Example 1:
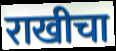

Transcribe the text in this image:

राखीचा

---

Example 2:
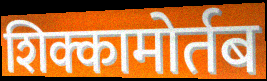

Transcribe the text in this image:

शिक्कामोर्तब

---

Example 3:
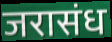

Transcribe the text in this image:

जरासंध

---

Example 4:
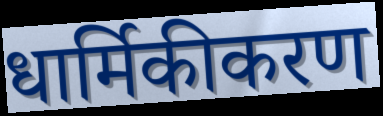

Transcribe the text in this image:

धार्मिकीकरण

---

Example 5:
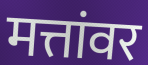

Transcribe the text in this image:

मत्तांवर